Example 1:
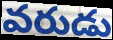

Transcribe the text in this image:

వరుడు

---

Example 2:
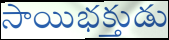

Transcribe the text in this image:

సాయిభక్తుడు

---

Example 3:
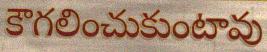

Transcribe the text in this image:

కౌగలించుకుంటావు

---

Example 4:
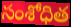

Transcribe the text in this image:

సంశోధిత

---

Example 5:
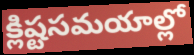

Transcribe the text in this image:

క్లిష్టసమయాల్లో